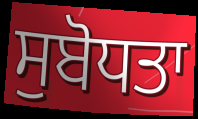
ਸੁਬੋਧਤਾ